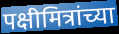
पक्षीमित्रांच्या